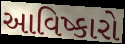
આવિષ્કારો